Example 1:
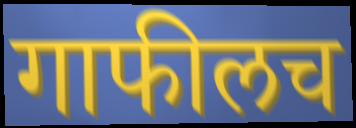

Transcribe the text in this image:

गाफीलच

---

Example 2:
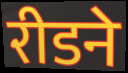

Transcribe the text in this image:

रीडने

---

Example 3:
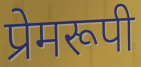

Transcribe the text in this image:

प्रेमरूपी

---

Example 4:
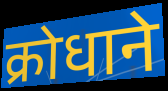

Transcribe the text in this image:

क्रोधाने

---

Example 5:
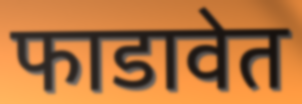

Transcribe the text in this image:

फाडावेत